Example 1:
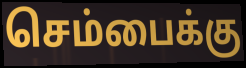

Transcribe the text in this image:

செம்பைக்கு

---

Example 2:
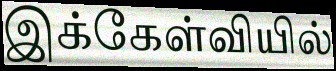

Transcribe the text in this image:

இக்கேள்வியில்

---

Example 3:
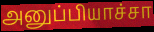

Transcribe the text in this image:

அனுப்பியாச்சா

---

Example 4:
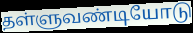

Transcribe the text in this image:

தள்ளுவண்டியோடு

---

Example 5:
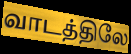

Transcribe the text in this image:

வாடத்திலே